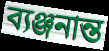
ব্যঞ্জনান্ত